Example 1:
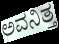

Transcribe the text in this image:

ಅವನಿತ್ತ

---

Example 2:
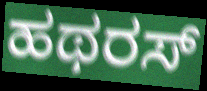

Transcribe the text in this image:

ಹಥರಸ್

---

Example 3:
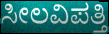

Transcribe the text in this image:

ಸೀಲವಿಪತ್ತಿ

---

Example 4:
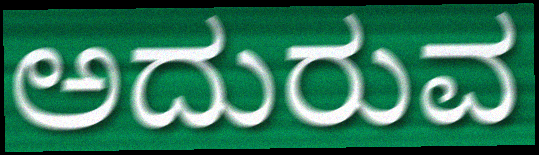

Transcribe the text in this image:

ಅದುರುವ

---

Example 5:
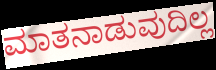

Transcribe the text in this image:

ಮಾತನಾಡುವುದಿಲ್ಲ